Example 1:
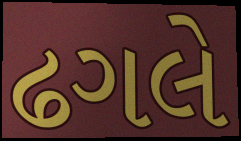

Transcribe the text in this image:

ઢગલે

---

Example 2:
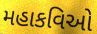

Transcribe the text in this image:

મહાકવિઓ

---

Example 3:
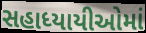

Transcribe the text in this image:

સહાધ્યાયીઓમાં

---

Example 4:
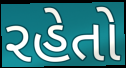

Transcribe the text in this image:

રહેતો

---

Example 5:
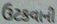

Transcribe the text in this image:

ઉટકવાની